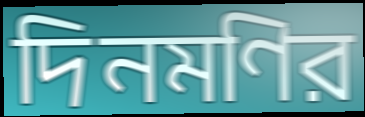
দিনমণির